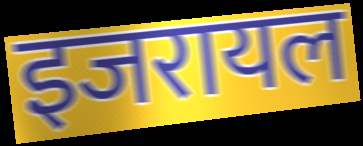
इजरायल